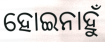
ହୋଇନାହୁଁ